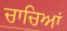
ਚਾਚਿਆਂ